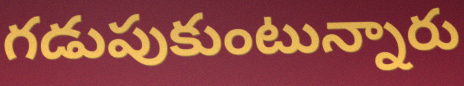
గడుపుకుంటున్నారు